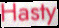
Hasty